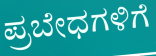
ಪ್ರಬೇಧಗಳಿಗೆ